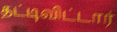
தட்டிவிட்டார்